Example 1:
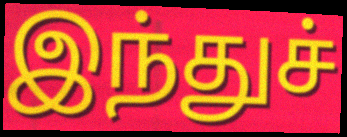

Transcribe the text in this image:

இந்துச்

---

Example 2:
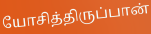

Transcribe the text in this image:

யோசித்திருப்பான்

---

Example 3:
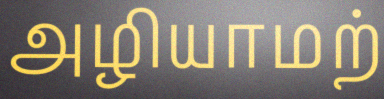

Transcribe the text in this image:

அழியாமற்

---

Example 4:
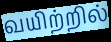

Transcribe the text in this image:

வயிற்றில்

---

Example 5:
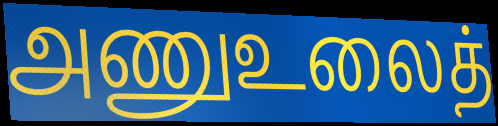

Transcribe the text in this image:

அணுஉலைத்